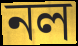
নল